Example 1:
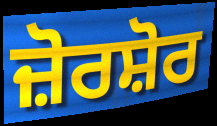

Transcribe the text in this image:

ਜ਼ੋਰਸ਼ੋਰ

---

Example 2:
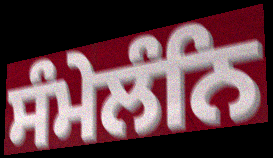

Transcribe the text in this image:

ਸੰਮੇਲੰਨਿ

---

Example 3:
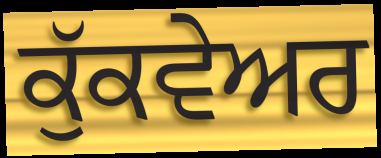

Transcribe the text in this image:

ਕੁੱਕਵੇਅਰ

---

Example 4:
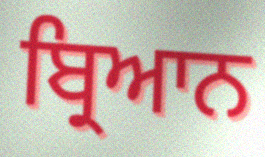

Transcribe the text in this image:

ਬ੍ਰਿਆਨ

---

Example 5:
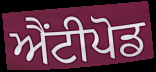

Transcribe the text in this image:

ਐਂਟੀਪੋਡ